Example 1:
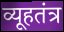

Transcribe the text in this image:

व्यूहतंत्र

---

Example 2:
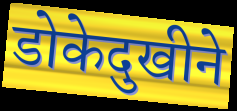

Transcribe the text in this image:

डोकेदुखीने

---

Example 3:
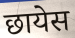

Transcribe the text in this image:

छायेस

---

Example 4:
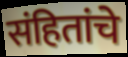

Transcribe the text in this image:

संहितांचे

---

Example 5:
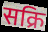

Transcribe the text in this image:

सक्रि